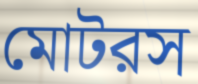
মোটরস